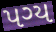
પગ્ય